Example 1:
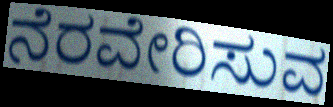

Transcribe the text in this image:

ನೆರವೇರಿಸುವ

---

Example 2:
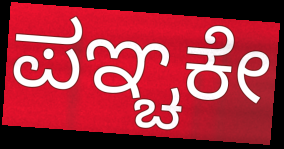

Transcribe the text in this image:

ಪಞ್ಚಕೇ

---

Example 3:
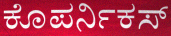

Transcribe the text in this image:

ಕೊಪರ್ನಿಕಸ್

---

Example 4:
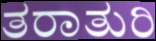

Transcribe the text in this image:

ತರಾತುರಿ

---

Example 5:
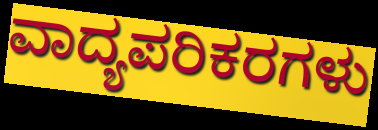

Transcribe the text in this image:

ವಾದ್ಯಪರಿಕರಗಳು